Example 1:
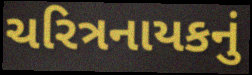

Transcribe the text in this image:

ચરિત્રનાયકનું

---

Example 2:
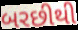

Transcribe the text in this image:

બરછીથી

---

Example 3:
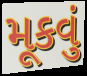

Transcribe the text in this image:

મૂકવું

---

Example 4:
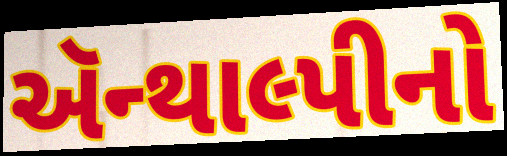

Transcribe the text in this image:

ઍન્થાલ્પીનો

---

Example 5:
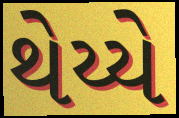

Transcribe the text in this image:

થેય્યે